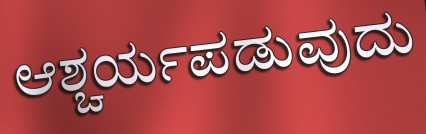
ಆಶ್ಚರ್ಯಪಡುವುದು